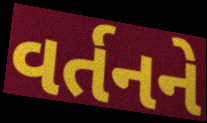
વર્તનને